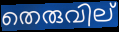
തെരുവില്